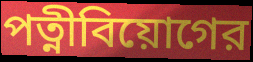
পত্নীবিয়োগের